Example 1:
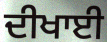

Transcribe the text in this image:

ਦੀਖਾਈ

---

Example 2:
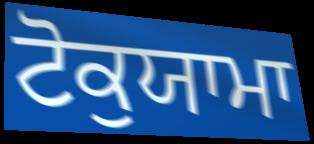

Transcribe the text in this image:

ਟੋਕੁਯਾਮਾ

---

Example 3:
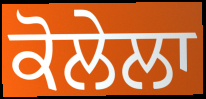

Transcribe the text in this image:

ਕੋਲੇਲਾ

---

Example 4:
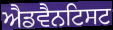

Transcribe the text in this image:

ਐਡਵੈਨਟਿਸਟ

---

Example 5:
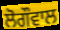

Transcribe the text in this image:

ਲੋਗੌਵਾਲ